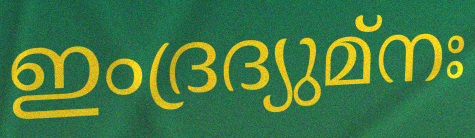
ഇംദ്രദ്യുമ്നഃ